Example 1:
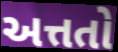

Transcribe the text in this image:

અત્તતો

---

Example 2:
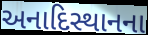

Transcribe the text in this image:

અનાદિસ્થાનના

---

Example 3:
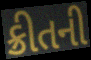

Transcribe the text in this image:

ક્રીતની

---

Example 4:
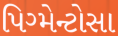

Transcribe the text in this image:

પિગ્મેન્ટોસા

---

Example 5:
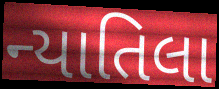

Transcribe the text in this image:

ન્યાતિલા